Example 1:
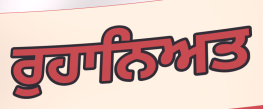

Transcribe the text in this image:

ਰੁਹਾਨਿਅਤ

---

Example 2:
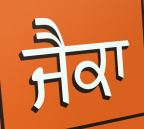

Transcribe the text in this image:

ਜੈਕਾ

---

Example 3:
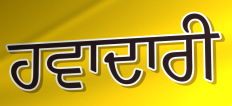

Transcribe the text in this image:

ਹਵਾਦਾਰੀ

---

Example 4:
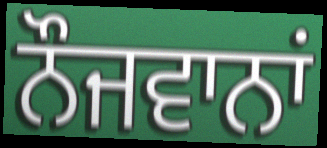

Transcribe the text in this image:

ਨੌਜਵਾਨਾਂ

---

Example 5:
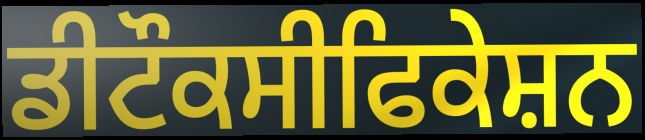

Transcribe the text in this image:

ਡੀਟੌਕਸੀਫਿਕੇਸ਼ਨ